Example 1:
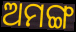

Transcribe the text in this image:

ଅମଙ୍ଗ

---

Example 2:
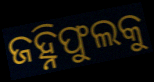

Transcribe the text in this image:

ଜହ୍ନିଫୁଲକୁ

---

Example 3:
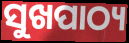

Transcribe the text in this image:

ସୁଖପାଠ୍ୟ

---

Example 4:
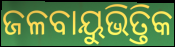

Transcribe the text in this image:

ଜଳବାୟୁଭିତ୍ତିକ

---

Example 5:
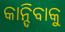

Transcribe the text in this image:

କାନ୍ଦିବାକୁ